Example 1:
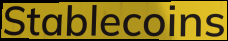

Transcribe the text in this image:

Stablecoins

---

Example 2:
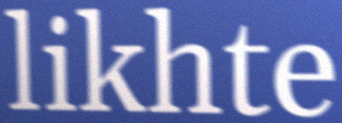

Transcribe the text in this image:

likhte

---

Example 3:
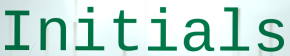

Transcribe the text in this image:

Initials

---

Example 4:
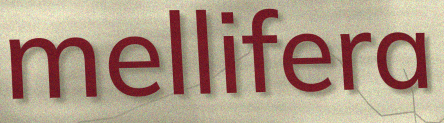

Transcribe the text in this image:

mellifera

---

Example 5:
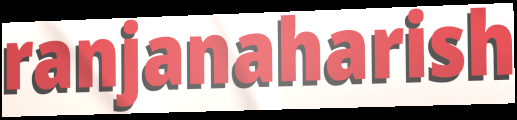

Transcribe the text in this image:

ranjanaharish